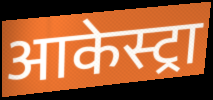
आकेस्ट्रा